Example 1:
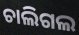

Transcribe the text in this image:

ଚାଲିଗଲ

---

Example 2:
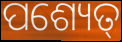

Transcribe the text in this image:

ପଶ୍ୟେତ୍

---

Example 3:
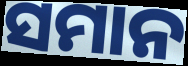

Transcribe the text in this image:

ସମାନ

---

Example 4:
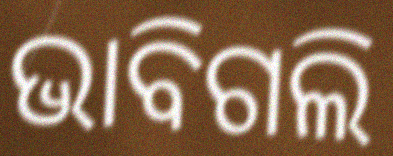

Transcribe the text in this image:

ଭାବିଗଲି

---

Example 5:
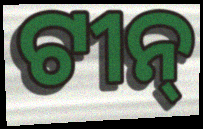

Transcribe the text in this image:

ଟୀନ୍